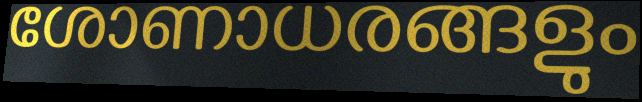
ശോണാധരങ്ങളും